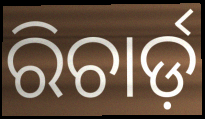
ରିଚାର୍ଡ଼